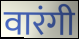
वारंगी